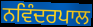
ਨਵਿੰਦਰਪਾਲ